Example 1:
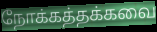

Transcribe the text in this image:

நோக்கத்தக்கவை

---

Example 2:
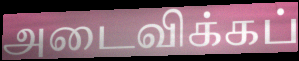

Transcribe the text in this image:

அடைவிக்கப்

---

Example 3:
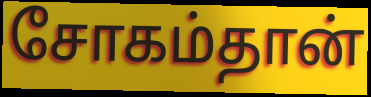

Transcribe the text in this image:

சோகம்தான்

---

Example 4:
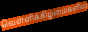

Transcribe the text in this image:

வெள்ளிக்கிழமைகளில்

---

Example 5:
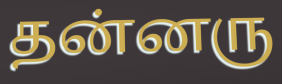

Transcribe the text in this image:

தன்னரு